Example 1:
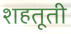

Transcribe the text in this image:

शहतूती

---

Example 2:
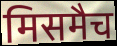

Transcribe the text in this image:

मिसमैच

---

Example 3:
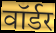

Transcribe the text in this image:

वॉर्डर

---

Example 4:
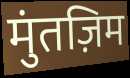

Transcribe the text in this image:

मुंतज़िम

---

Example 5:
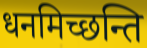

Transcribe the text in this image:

धनमिच्छन्ति